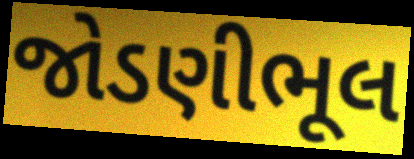
જોડણીભૂલ